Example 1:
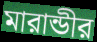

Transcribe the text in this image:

মারান্ডীর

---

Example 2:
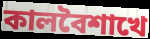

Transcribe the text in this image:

কালবৈশাখে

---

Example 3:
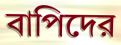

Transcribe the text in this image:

বাপিদের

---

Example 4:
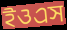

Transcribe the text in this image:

ইওএস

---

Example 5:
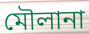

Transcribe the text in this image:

মৌলানা